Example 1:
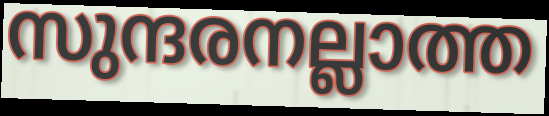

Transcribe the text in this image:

സുന്ദരനല്ലാത്ത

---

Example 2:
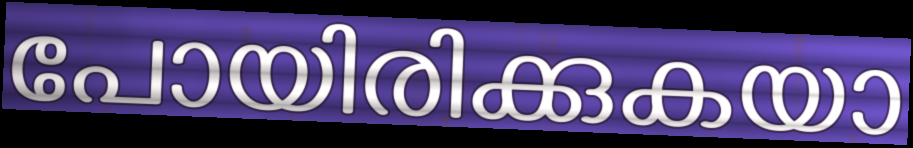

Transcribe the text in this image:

പോയിരിക്കുകയാ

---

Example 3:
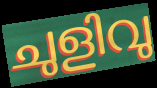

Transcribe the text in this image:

ചുളിവു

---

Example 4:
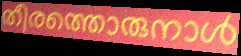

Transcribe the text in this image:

തീരത്തൊരുനാൾ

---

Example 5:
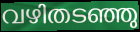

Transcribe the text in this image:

വഴിതടഞ്ഞു